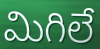
మిగిలే